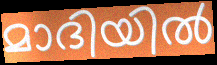
മാദിയിൽ